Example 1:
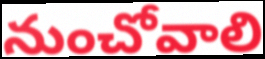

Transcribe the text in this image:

నుంచోవాలి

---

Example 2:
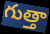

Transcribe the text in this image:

గుత్తా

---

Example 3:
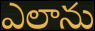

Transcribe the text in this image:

ఎలాను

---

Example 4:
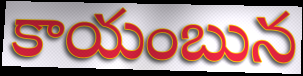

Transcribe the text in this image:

కాయంబున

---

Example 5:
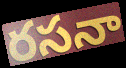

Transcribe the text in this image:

రసనా